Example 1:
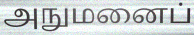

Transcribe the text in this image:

அநுமனைப்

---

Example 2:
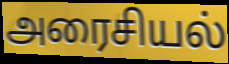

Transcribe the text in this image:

அரைசியல்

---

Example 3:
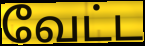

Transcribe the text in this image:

வேட்ட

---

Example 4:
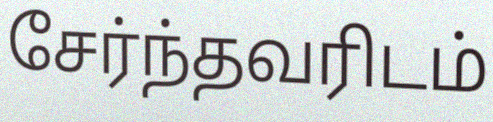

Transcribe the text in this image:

சேர்ந்தவரிடம்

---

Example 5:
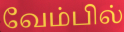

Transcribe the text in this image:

வேம்பில்